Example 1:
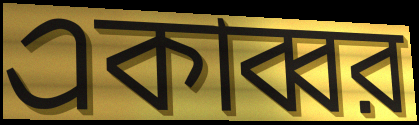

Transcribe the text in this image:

একাব্বর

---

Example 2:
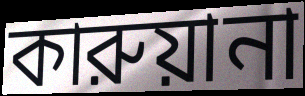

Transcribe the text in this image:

কারুয়ানা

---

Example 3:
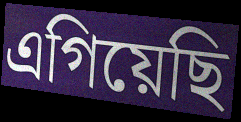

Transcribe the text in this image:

এগিয়েছি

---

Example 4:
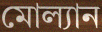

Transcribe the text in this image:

মোল্যান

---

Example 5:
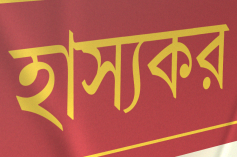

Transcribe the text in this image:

হাস্যকর